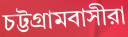
চট্টগ্রামবাসীরা